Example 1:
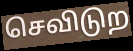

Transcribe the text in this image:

செவிடுற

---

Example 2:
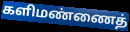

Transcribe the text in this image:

களிமண்ணைத்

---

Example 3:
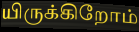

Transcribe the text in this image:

யிருக்கிறோம்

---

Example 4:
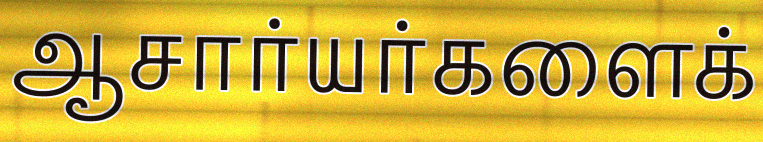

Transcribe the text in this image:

ஆசார்யர்களைக்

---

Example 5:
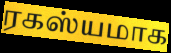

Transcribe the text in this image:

ரகஸ்யமாக